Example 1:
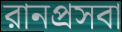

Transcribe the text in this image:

রানপ্রসবা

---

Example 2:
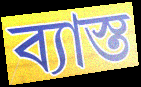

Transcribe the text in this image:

ব্যাস্ত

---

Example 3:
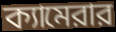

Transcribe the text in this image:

ক্যামেরার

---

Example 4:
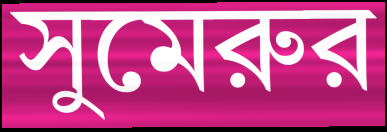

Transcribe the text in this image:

সুমেরুর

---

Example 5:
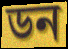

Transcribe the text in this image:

ডন